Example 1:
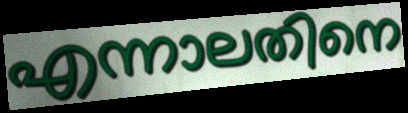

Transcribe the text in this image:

എന്നാലതിനെ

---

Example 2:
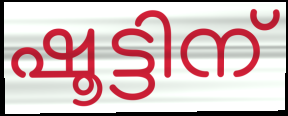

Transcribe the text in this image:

ഷൂട്ടിന്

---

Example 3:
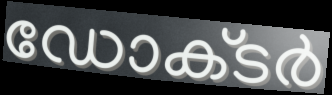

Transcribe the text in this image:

ഡോക്‌ടർ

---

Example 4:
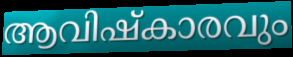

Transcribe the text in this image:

ആവിഷ്കാരവും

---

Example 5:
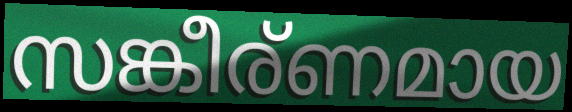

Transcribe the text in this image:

സങ്കീര്ണമായ